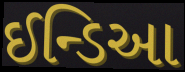
ઈન્ડિઆ